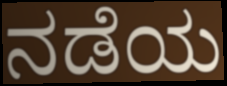
ನಡೆಯ